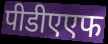
पीडीएएफ